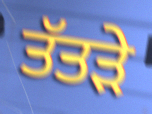
ਤੱਤੜੇ